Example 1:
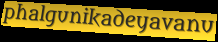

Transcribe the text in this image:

phalgunikadeyavanu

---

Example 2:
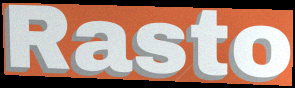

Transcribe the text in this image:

Rasto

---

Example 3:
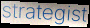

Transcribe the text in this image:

strategist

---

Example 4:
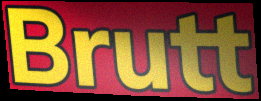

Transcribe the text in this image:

Brutt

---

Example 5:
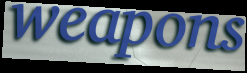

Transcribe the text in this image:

weapons